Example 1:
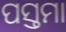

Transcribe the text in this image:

ପସ୍ତମା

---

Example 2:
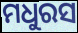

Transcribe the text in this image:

ମଧୁରସ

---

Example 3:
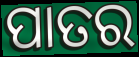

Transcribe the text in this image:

ପାତର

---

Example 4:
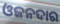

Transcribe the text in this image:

ଓଜନଦାର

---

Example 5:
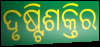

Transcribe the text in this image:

ଦୃଷ୍ଟିଶକ୍ତିର